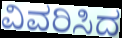
ವಿವರಿಸಿದ